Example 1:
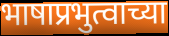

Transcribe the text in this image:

भाषाप्रभुत्वाच्या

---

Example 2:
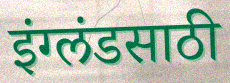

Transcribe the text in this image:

इंग्लंडसाठी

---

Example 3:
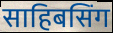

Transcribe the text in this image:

साहिबसिंग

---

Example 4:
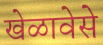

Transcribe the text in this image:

खेळावेसे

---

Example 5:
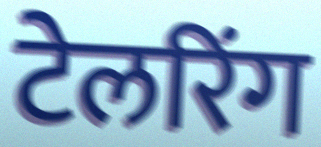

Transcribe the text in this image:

टेलरिंग